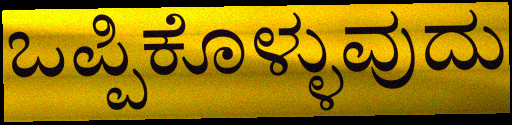
ಒಪ್ಪಿಕೊಳ್ಳುವುದು